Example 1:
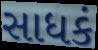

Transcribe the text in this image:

સાધકં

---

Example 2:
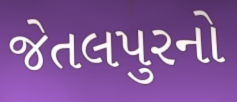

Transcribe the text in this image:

જેતલપુરનો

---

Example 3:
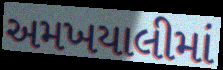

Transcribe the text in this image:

અમખયાલીમાં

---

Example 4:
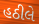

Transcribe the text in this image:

હઠીલે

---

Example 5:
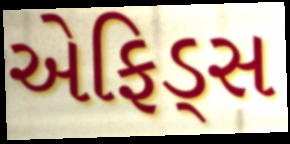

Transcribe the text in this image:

એફિડ્સ